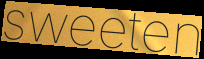
sweeten